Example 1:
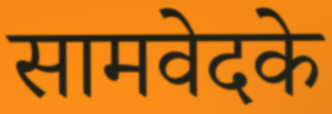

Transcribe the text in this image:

सामवेदके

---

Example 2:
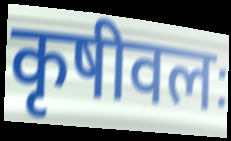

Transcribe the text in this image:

कृषीवलः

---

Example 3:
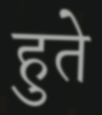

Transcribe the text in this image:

हुते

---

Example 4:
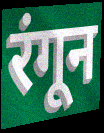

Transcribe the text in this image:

रंगून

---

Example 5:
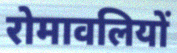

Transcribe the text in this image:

रोमावलियों